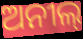
ଅନୀଲ୍